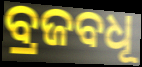
ବ୍ରଜବଧୂ